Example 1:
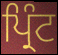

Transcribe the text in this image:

ਪ੍ਰਿੰਟ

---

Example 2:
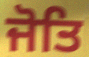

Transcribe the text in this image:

ਜੋਤਿ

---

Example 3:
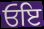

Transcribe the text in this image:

ਓਇ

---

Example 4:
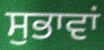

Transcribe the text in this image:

ਸੁਭਾਵਾਂ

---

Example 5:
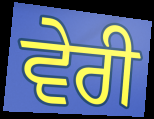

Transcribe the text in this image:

ਵੇਰੀ